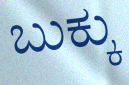
ಬುಕ್ಕು